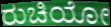
ರುಚಿಯೋ